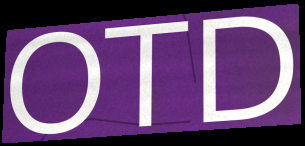
OTD